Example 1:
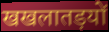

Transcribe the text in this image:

खखलातड़यों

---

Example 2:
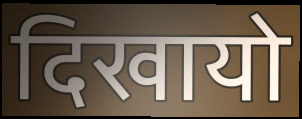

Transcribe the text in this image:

दिखायो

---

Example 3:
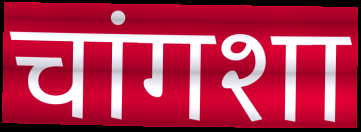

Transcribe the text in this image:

चांगशा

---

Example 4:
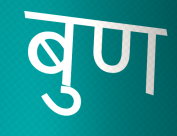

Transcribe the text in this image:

बुण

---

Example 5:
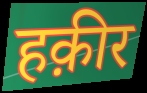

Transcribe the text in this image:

हक़ीर